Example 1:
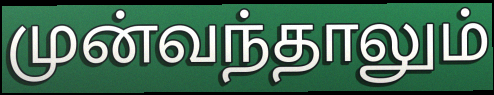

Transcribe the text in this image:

முன்வந்தாலும்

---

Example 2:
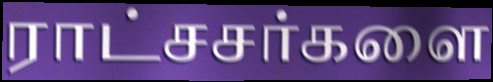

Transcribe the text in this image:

ராட்சசர்களை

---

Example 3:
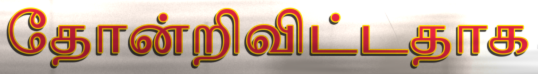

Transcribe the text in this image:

தோன்றிவிட்டதாக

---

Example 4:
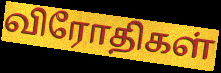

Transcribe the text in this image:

விரோதிகள்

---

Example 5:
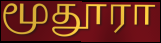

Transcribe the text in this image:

மூதூரா